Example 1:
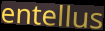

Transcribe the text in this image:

entellus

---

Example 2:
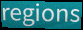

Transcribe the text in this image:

regions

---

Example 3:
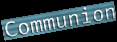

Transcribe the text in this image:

Communion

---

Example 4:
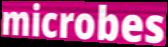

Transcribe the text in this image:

microbes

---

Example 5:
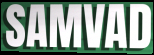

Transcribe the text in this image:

SAMVAD